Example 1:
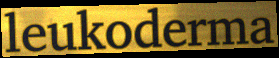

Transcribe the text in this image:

leukoderma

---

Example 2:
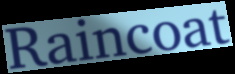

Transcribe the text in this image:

Raincoat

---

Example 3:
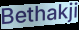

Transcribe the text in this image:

Bethakji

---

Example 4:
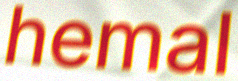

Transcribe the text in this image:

hemal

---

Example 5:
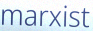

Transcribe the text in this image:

marxist